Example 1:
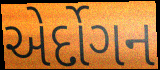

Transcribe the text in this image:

એર્દોગન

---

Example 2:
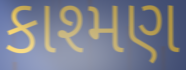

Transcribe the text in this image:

કાશ્મણ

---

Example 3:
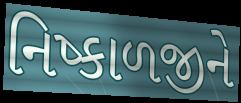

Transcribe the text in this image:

નિષ્કાળજીને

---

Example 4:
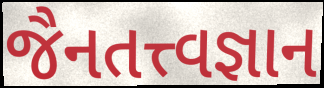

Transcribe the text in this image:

જૈનતત્ત્વજ્ઞાન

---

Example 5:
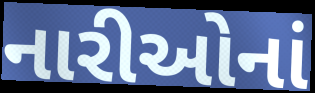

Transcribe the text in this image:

નારીઓનાં